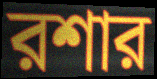
রশার